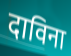
दाविना